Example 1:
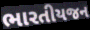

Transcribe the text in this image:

ભારતીયજન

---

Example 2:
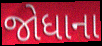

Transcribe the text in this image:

જોધાના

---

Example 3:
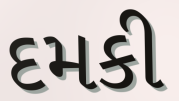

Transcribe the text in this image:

દમકી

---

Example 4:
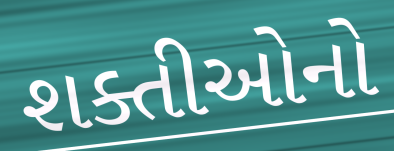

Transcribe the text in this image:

શક્તીઓનો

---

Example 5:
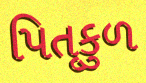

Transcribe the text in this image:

પિતૃકુળ